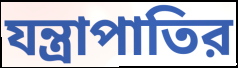
যন্ত্রাপাতির